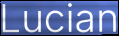
Lucian